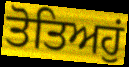
ਤੋਤਿਅਹੁਂ